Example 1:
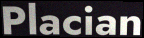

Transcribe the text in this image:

Placian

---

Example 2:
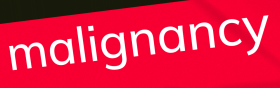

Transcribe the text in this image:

malignancy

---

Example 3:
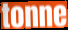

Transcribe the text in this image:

tonne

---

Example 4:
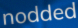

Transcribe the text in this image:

nodded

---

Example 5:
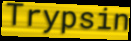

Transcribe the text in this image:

Trypsin